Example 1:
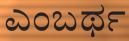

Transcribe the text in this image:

ಎಂಬರ್ಥ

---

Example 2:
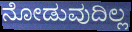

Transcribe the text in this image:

ನೋಡುವುದಿಲ್ಲ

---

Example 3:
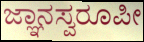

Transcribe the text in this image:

ಜ್ಞಾನಸ್ವರೂಪೀ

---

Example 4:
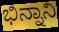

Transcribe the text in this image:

ಭಿನ್ನಾನಿ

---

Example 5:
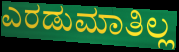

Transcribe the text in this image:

ಎರಡುಮಾತಿಲ್ಲ